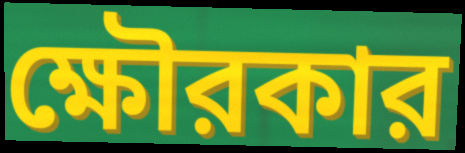
ক্ষৌরকার